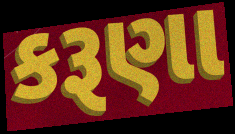
કરૂણા